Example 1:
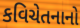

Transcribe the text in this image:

કવિચેતનાનો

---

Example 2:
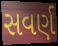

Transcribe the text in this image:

સવર્ણ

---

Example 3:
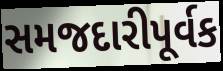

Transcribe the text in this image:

સમજદારીપૂર્વક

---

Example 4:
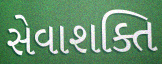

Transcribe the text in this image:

સેવાશક્તિ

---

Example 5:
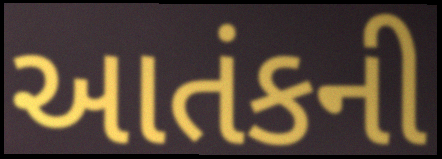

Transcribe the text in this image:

આતંકની